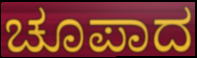
ಚೂಪಾದ